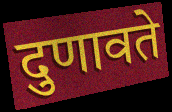
दुणावते